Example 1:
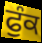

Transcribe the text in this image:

ਫੁੰਕ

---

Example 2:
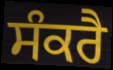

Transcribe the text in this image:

ਸੰਕਰੈ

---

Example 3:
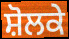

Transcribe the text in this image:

ਸ਼ੋਲਕੇ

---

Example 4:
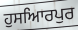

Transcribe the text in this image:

ਹੁਸਆਿਰਪੁਰ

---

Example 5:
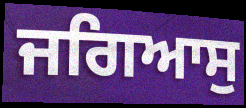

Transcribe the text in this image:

ਜਗਿਆਸੁ